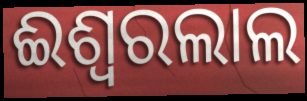
ଈଶ୍ଵରଲାଲ